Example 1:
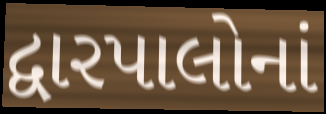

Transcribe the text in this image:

દ્વારપાલોનાં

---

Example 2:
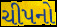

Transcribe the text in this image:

ચીપનો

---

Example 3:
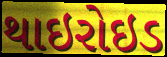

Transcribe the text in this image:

થાઇરોઇડ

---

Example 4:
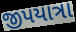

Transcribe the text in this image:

જીપયાત્રા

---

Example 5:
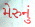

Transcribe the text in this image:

મેરુનું